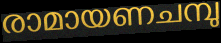
രാമായണചമ്പു